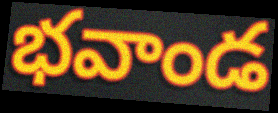
భవాండ